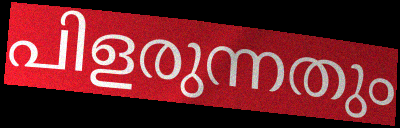
പിളരുന്നതും